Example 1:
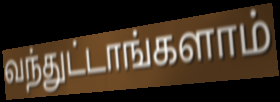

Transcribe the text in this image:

வந்துட்டாங்களாம்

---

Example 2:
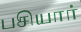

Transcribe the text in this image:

பசியார்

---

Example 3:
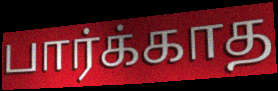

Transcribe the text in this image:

பார்க்காத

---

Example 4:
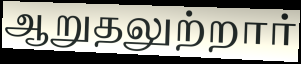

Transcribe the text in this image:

ஆறுதலுற்றார்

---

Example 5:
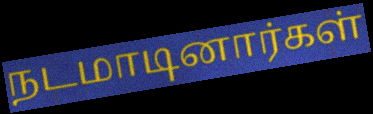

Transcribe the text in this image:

நடமாடினார்கள்